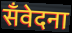
सँवेदना